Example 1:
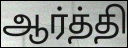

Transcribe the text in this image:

ஆர்த்தி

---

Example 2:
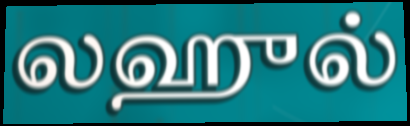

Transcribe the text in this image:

லஹுல்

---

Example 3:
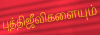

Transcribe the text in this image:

புத்திஜீவிகளையும்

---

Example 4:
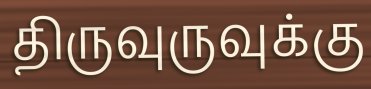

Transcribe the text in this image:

திருவுருவுக்கு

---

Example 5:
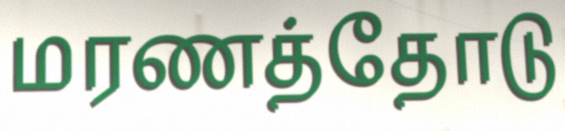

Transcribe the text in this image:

மரணத்தோடு